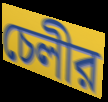
চেলীর